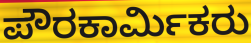
ಪೌರಕಾರ್ಮಿಕರು